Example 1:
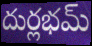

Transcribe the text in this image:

దుర్లభమ్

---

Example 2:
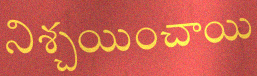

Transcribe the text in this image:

నిశ్చయించాయి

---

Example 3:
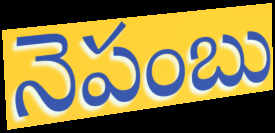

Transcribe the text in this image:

నెపంబు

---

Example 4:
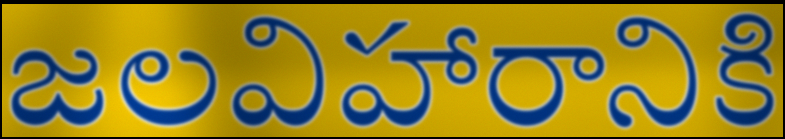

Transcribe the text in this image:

జలవిహారానికి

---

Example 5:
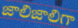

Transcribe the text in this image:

జాలిజాలిగా